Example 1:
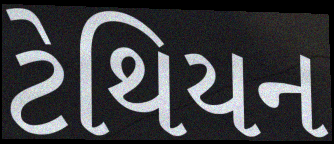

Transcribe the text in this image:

ટેથિયન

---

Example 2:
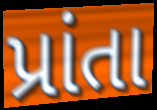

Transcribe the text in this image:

પ્રાંતા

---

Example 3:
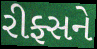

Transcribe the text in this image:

રીફ્સને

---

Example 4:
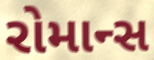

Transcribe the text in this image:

રોમાન્સ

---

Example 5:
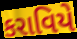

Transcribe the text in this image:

કરાવિયે